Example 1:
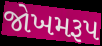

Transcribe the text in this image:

જોખમરૂપ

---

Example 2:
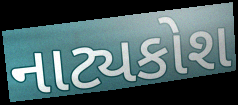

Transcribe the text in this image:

નાટ્યકોશ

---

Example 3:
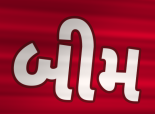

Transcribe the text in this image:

બીમ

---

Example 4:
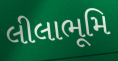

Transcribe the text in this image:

લીલાભૂમિ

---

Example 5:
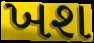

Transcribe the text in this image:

ખશ